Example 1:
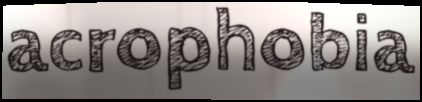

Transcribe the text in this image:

acrophobia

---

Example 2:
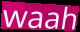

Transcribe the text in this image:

waah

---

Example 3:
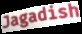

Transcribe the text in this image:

Jagadish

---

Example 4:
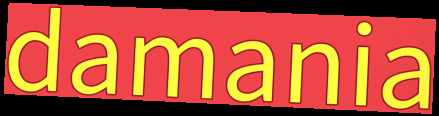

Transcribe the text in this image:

damania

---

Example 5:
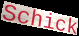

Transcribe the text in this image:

Schick